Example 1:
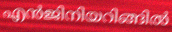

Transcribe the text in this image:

എൻജിനിയറിങ്ങിൽ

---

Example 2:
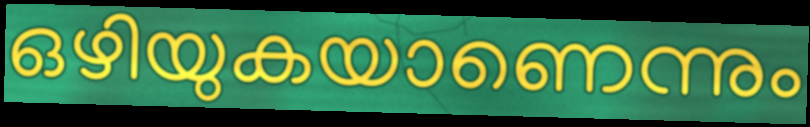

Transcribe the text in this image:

ഒഴിയുകയാണെന്നും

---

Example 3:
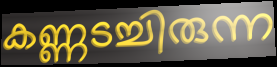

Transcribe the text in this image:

കണ്ണടച്ചിരുന്ന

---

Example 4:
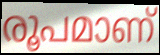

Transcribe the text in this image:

രൂപമാണ്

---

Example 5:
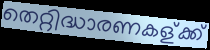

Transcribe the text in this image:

തെറ്റിദ്ധാരണകള്ക്ക്